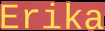
Erika